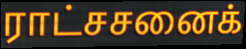
ராட்சசனைக்